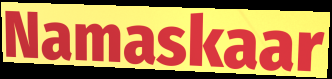
Namaskaar